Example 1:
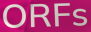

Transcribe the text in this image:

ORFs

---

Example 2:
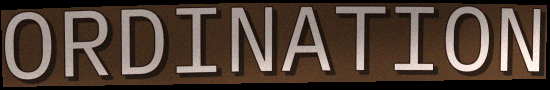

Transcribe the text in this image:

ORDINATION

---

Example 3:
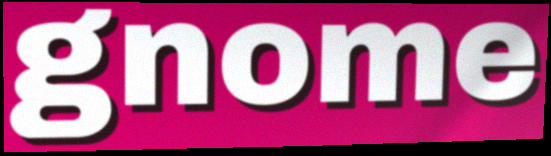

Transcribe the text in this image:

gnome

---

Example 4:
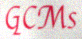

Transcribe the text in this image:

GCMs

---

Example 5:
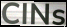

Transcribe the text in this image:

CINs